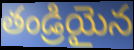
తండ్రియైన